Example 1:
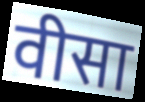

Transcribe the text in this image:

वीसा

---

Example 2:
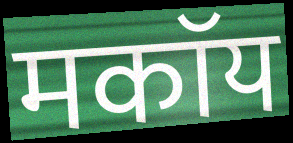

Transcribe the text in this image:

मकॉय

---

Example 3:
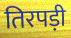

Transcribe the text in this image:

तिरपड़ी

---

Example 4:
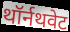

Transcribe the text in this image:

थॉर्नथवेट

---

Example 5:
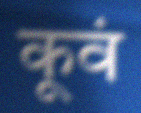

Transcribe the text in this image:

कूवं